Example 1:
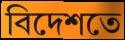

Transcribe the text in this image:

বিদেশতে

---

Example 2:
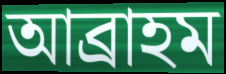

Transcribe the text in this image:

আব্ৰাহম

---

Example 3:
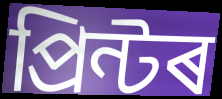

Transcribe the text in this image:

প্ৰিন্টৰ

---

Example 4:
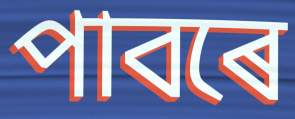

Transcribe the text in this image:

পাবৰে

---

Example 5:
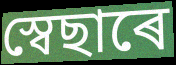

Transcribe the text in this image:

স্বেছাৰে